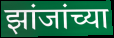
झांजांच्या